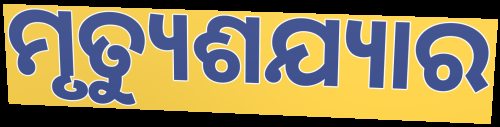
ମୃତ୍ୟୁଶଯ୍ୟାର